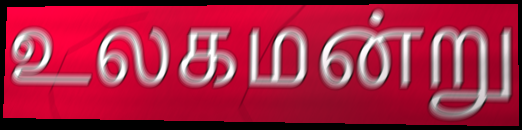
உலகமன்று